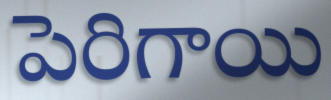
పెరిగాయి